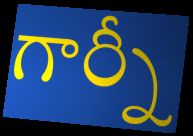
గార్నీ